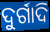
ଦୁର୍ଗାଦି